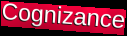
Cognizance